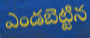
ఎండబెట్టిన